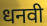
धनवी